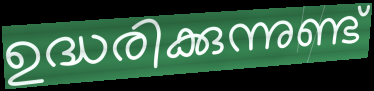
ഉദ്ധരിക്കുന്നുണ്ട്